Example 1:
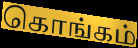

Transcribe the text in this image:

கொங்கம்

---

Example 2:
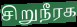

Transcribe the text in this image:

சிறுநீரக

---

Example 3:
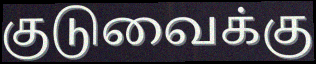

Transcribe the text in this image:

குடுவைக்கு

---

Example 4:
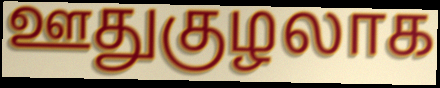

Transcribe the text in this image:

ஊதுகுழலாக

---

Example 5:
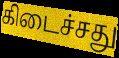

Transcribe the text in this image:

கிடைச்சது